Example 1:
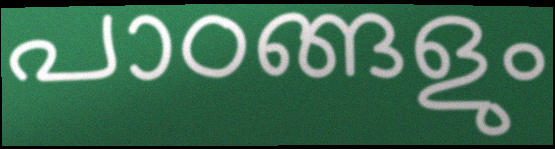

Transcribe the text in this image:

പാഠങ്ങളും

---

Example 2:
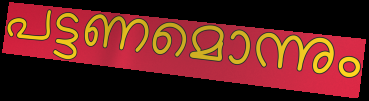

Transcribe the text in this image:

പട്ടണമൊന്നും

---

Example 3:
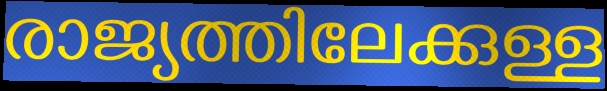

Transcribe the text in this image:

രാജ്യത്തിലേക്കുള്ള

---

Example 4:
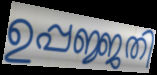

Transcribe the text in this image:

ഉപ്പജ്ജതി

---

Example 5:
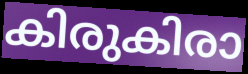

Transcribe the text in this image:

കിരുകിരാ